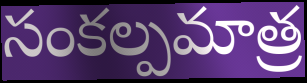
సంకల్పమాత్ర